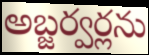
అబ్జర్వర్లను